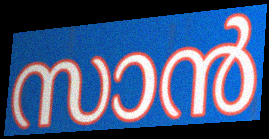
സാൻ